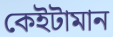
কেইটামান